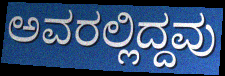
ಅವರಲ್ಲಿದ್ದವು